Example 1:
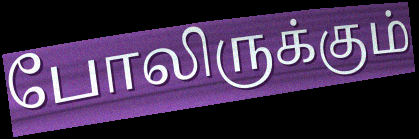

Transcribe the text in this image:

போலிருக்கும்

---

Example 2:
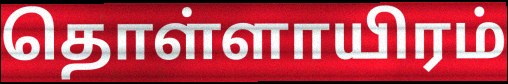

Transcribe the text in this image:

தொள்ளாயிரம்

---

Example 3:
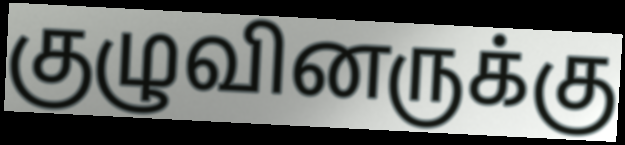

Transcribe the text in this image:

குழுவினருக்கு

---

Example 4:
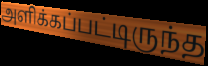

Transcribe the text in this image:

அளிக்கப்பட்டிருந்த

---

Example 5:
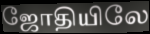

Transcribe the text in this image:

ஜோதியிலே